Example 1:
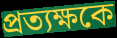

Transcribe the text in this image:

প্রত্যক্ষকে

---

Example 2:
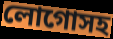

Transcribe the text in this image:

লোগোসহ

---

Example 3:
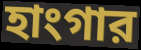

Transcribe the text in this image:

হাংগার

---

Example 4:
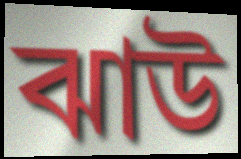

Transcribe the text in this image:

ঝাউ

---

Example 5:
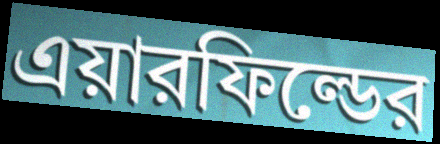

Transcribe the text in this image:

এয়ারফিল্ডের